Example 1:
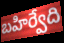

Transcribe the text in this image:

బహిర్వేది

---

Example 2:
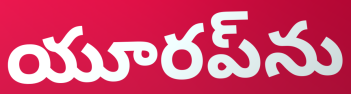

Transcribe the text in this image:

యూరప్‌ను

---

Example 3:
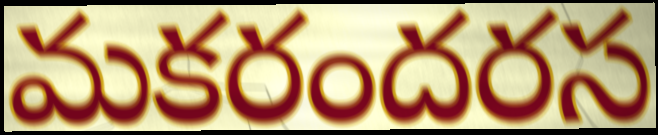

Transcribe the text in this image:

మకరందరస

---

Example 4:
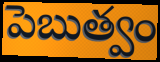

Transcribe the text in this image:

పెబుత్వం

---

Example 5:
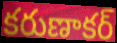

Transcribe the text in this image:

కరుణాకర్